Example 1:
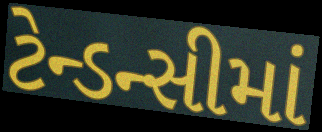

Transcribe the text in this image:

ટેન્ડન્સીમાં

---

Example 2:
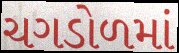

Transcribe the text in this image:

ચગડોળમાં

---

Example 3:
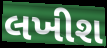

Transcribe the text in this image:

લખીશ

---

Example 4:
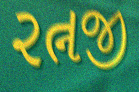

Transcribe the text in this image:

રત્નજી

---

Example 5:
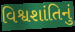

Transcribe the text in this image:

વિશ્વશાંતિનું